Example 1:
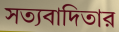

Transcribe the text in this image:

সত্যবাদিতার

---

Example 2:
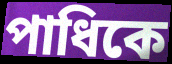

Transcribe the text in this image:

পাধিকে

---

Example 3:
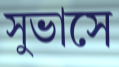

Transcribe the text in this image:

সুভাসে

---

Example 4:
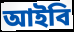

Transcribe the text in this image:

আইবি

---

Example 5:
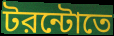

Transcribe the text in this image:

টরন্টোতে